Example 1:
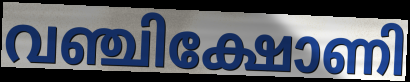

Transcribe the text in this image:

വഞ്ചിക്ഷോണി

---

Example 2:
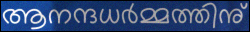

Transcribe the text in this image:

ആനന്ദധർമ്മത്തിനു്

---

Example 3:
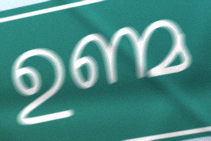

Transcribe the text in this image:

ഉണ്മ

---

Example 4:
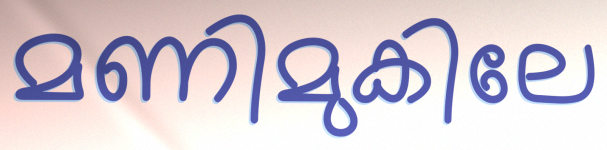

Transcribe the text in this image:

മണിമുകിലേ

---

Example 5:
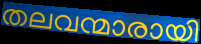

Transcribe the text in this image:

തലവന്മാരായി